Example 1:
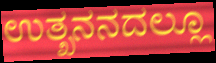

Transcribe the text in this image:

ಉತ್ಖನನದಲ್ಲೂ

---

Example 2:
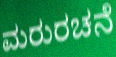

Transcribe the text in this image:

ಮರುರಚನೆ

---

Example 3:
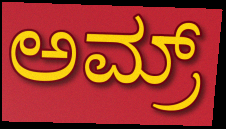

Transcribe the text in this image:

ಅಮ್ರ್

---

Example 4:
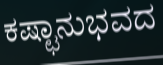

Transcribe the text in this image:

ಕಷ್ಟಾನುಭವದ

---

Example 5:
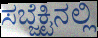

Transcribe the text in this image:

ಸಬ್ಜೆಕ್ಟಿನಲ್ಲಿ